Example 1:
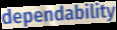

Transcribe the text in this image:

dependability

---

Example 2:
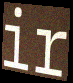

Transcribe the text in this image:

ir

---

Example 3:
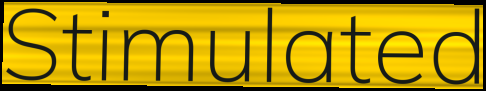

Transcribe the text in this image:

Stimulated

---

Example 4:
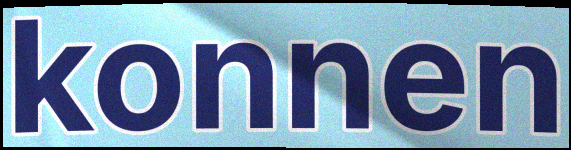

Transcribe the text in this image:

konnen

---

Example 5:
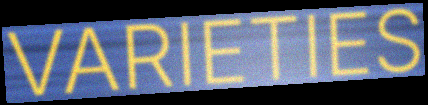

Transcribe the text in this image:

VARIETIES